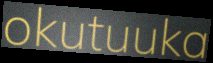
okutuuka